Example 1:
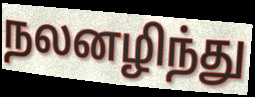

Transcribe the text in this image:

நலனழிந்து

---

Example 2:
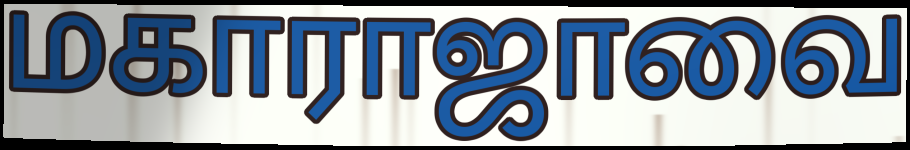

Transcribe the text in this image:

மகாராஜாவை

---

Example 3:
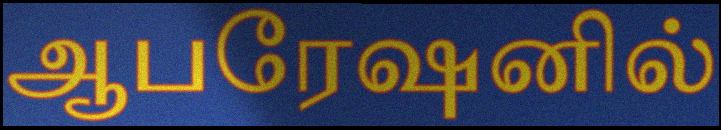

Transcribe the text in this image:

ஆபரேஷனில்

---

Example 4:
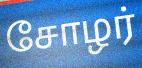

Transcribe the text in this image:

சோழர்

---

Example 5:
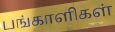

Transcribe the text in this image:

பங்காளிகள்